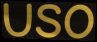
USO